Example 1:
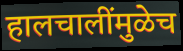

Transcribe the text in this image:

हालचालींमुळेच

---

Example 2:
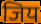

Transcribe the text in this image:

जिय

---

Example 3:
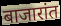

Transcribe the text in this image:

बाजारांत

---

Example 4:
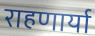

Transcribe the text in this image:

राहणार्या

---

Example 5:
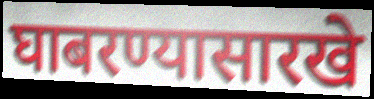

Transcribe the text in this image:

घाबरण्यासारखे